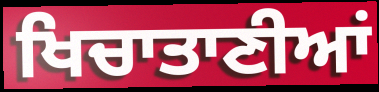
ਖਿਚਾਤਾਣੀਆਂ